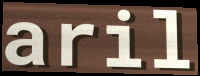
aril